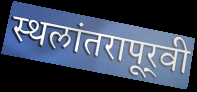
स्थलांतरापूर्वी